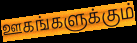
ஊகங்களுக்கும்